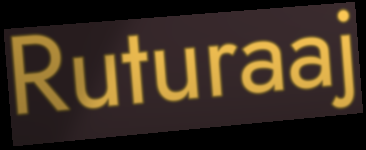
Ruturaaj